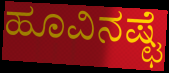
ಹೂವಿನಷ್ಟೆ